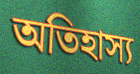
অতিহাস্য